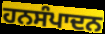
ਹਨਸੰਪਾਦਨ